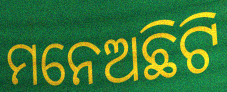
ମନେଅଛିଟି